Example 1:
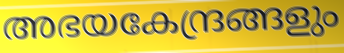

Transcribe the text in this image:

അഭയകേന്ദ്രങ്ങളും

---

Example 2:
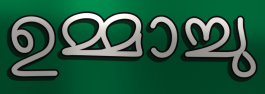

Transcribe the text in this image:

ഉമ്മാച്ചു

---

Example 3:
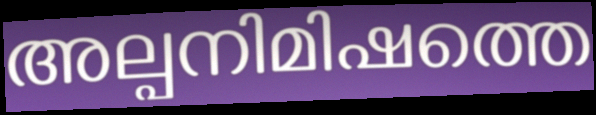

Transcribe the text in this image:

അല്പനിമിഷത്തെ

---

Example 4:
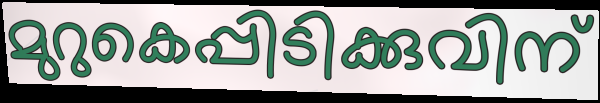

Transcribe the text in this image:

മുറുകെപ്പിടിക്കുവിന്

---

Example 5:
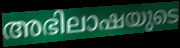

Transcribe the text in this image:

അഭിലാഷയുടെ